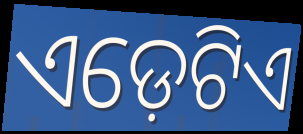
ଏଡ଼େଟିଏ